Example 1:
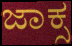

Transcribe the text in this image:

ಜಾಕ್ಸ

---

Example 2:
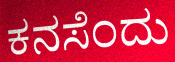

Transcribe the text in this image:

ಕನಸೆಂದು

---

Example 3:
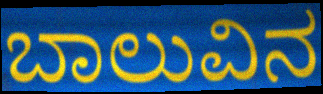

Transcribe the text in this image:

ಬಾಲುವಿನ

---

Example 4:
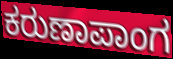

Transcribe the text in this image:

ಕರುಣಾಪಾಂಗ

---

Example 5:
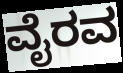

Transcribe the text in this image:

ವೈರವ